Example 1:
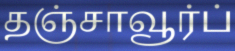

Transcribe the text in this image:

தஞ்சாவூர்ப்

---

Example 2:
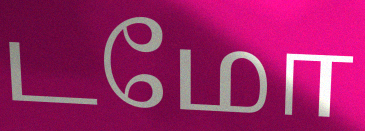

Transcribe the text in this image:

டமோ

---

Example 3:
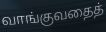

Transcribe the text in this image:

வாங்குவதைத்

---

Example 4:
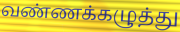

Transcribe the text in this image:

வண்ணக்கழுத்து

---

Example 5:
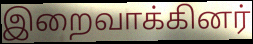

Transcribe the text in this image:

இறைவாக்கினர்